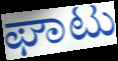
ಘಾಟು